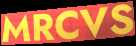
MRCVS